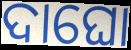
ଦାଘୋ